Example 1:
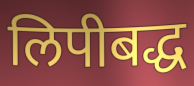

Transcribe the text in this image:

लिपीबद्ध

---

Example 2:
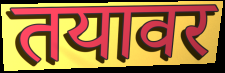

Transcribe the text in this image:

तयावर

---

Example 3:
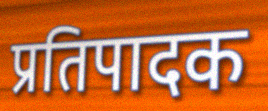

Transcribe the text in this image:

प्रतिपादक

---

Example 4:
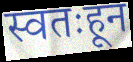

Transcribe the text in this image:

स्वतःहून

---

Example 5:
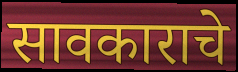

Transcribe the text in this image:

सावकाराचे